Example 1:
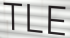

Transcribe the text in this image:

TLE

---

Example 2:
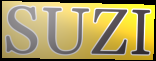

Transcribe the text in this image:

SUZI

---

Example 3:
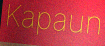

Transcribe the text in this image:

Kapaun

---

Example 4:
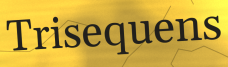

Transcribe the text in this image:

Trisequens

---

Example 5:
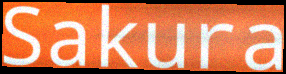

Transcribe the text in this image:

Sakura